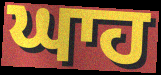
ਘਾਹ